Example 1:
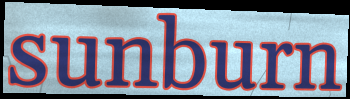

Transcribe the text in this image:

sunburn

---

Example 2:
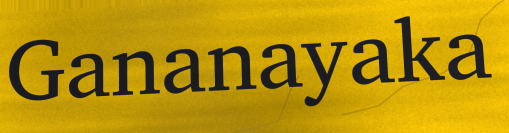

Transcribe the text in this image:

Gananayaka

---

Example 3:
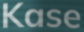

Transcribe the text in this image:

Kase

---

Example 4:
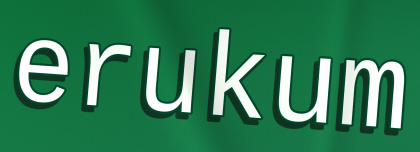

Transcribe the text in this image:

erukum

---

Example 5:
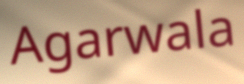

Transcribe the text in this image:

Agarwala